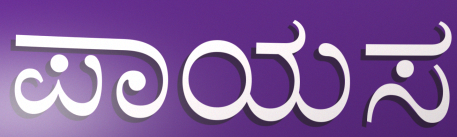
ಪಾಯಸ